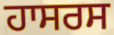
ਹਾਸਰਸ